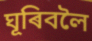
ঘূৰিবলৈ